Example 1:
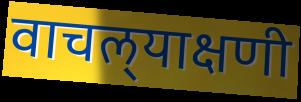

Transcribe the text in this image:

वाचल्याक्षणी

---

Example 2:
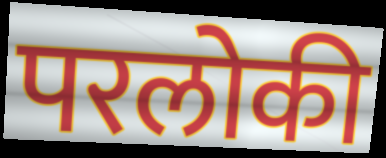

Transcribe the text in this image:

परलोकी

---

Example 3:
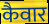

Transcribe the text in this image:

कैवार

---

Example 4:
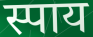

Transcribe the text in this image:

स्पाय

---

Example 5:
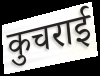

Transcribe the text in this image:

कुचराई